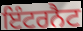
ਇੰਟਰਨੈਟ